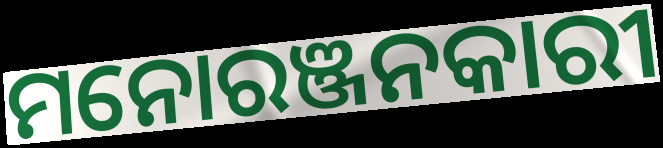
ମନୋରଞ୍ଜନକାରୀ